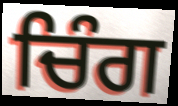
ਚਿੰਗ